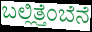
ಬಲ್ಲಿತ್ತೆಂಬೆನೆ